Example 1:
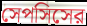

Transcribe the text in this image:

সেপসিসের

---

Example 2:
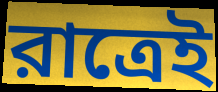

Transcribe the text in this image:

রাত্রেই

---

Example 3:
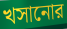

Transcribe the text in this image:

খসানোর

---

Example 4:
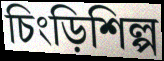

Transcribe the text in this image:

চিংড়িশিল্প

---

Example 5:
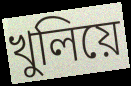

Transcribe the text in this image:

খুলিয়ে